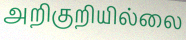
அறிகுறியில்லை